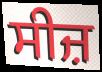
ਸੀਜ਼